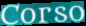
Corso